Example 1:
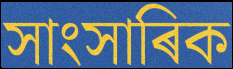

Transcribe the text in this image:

সাংসাৰিক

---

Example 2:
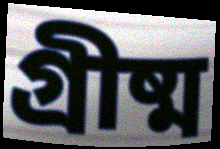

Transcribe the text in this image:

গ্ৰীষ্ম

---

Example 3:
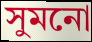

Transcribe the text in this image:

সুমনো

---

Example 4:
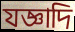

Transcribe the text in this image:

যজ্ঞাদি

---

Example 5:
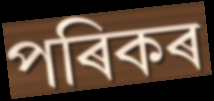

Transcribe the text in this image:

পৰিকৰ